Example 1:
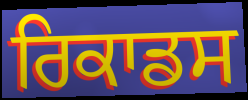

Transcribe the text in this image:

ਰਿਕਾਡਸ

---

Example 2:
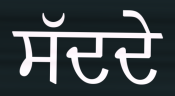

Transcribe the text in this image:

ਸੱਦਦੇ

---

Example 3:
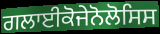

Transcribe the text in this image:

ਗਲਾਈਕੋਜੇਨੋਲੋਸਿਸ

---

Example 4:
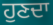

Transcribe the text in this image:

ਹੁਣਦਾ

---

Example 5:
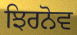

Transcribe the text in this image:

ਝਿਰਨੋਵ